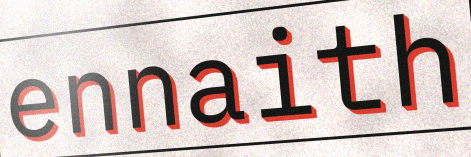
ennaith